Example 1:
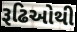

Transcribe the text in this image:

રૂઢિઓથી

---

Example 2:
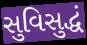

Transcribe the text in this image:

સુવિસુદ્ધં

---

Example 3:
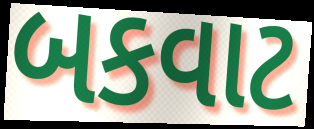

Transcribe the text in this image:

બકવાટ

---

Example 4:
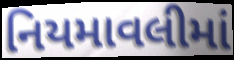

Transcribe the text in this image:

નિયમાવલીમાં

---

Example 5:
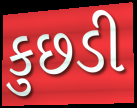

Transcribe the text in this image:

કુછડી